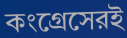
কংগ্রেসেরই